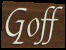
Goff